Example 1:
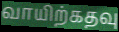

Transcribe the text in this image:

வாயிற்கதவு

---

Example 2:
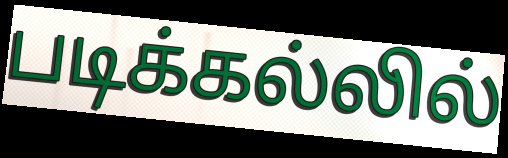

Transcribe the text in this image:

படிக்கல்லில்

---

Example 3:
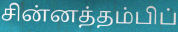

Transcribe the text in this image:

சின்னத்தம்பிப்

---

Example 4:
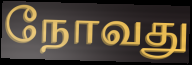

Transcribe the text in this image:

நோவது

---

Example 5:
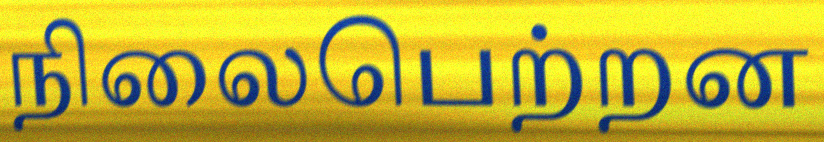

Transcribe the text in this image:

நிலைபெற்றன